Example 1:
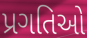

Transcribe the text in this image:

પ્રગતિઓ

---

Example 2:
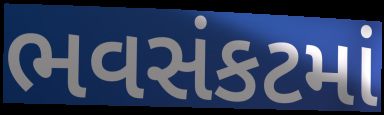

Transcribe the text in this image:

ભવસંકટમાં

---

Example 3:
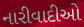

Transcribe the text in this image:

નારીવાદીઓ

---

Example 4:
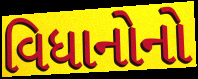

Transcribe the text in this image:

વિધાનોનો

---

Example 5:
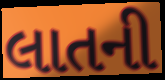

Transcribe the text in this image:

લાતની